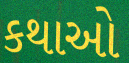
કથાઓ